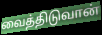
வைத்திடுவான்